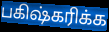
பகிஷ்கரிக்க